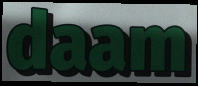
daam